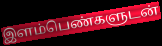
இளம்பெண்களுடன்